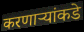
करणाऱ्यांकडे